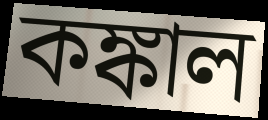
কঙ্কাল